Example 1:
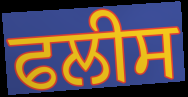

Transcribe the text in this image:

ਫਲੀਸ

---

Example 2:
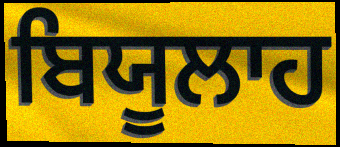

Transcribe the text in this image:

ਬਿਯੂਲਾਹ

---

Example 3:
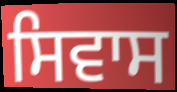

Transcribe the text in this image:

ਸਿਵਾਸ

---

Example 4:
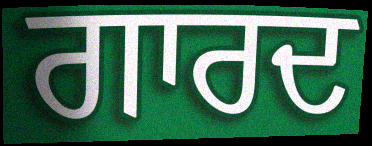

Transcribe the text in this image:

ਗਾਰਦ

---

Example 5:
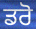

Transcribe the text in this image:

ਡਰੋ